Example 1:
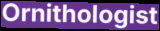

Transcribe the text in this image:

Ornithologist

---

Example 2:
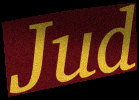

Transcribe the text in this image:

Jud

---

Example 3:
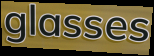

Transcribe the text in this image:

glasses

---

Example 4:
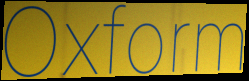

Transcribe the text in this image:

Oxform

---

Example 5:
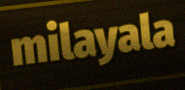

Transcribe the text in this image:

milayala